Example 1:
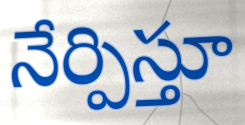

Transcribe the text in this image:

నేర్పిస్తూ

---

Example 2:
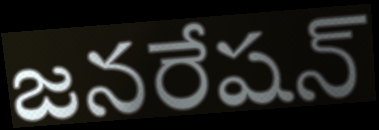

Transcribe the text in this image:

జనరేషన్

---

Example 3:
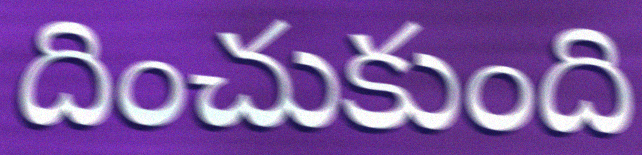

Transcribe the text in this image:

దించుకుంది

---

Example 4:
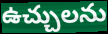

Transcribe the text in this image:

ఉచ్చులను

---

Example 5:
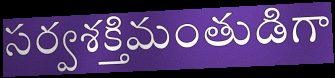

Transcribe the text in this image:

సర్వశక్తిమంతుడిగా